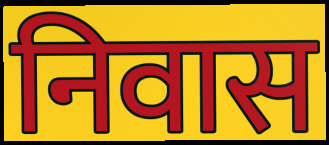
निवास